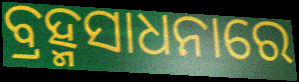
ବ୍ରହ୍ମସାଧନାରେ